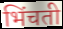
भिंचती